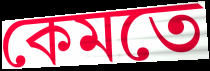
কেমতে